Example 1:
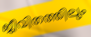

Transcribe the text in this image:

ജീവിതത്തിലും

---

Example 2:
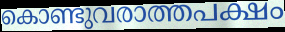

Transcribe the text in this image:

കൊണ്ടുവരാത്തപക്ഷം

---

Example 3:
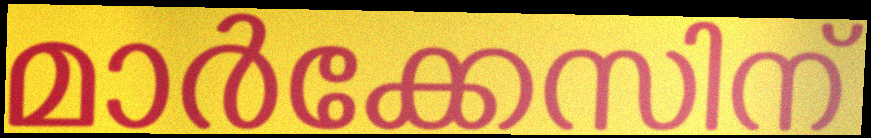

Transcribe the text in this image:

മാർക്കേസിന്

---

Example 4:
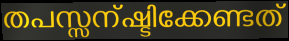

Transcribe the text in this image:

തപസ്സന്ഷ്ടിക്കേണ്ടത്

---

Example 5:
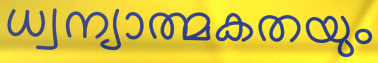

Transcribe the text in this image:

ധ്വന്യാത്മകതയും